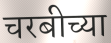
चरबीच्या